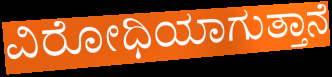
ವಿರೋಧಿಯಾಗುತ್ತಾನೆ